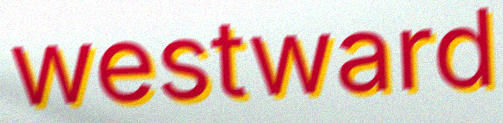
westward